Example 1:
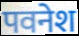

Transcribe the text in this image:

पवनेश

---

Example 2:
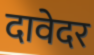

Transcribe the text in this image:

दावेदर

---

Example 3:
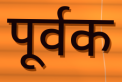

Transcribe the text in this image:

पूर्वक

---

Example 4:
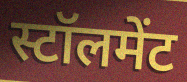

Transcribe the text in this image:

स्टॉलमेंट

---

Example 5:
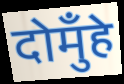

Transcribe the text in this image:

दोमुँहे